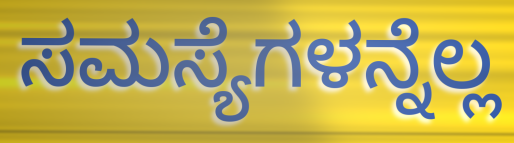
ಸಮಸ್ಯೆಗಳನ್ನೆಲ್ಲ